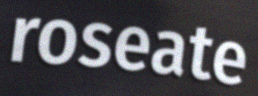
roseate